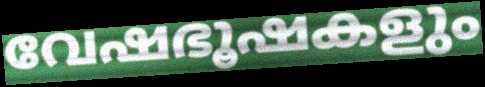
വേഷഭൂഷകളും